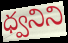
ధ్వనిని